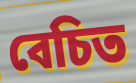
বেচিত